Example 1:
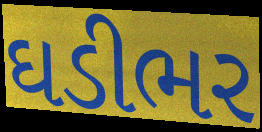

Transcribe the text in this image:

ઘડીભર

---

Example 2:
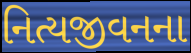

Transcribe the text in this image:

નિત્યજીવનના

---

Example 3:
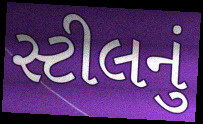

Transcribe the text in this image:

સ્ટીલનું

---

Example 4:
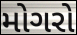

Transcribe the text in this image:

મોગરો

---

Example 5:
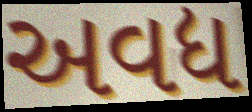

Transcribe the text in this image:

અવદ્ય